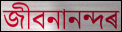
জীবনানন্দৰ